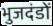
भुजदंडों